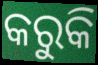
କରୁକି